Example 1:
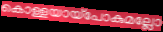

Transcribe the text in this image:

കൊള്ളയായ്പോകുമല്ലോ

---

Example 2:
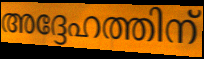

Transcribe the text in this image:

അദ്ദേഹത്തിന്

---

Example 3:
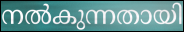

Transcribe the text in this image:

നൽകുന്നതായി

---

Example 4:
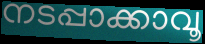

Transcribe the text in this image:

നടപ്പാക്കാവൂ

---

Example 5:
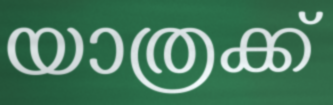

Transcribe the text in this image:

യാത്രക്ക്